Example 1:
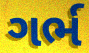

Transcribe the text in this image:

ગર્ભ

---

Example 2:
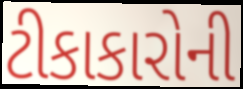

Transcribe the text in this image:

ટીકાકારોની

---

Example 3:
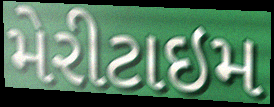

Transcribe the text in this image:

મેરીટાઇમ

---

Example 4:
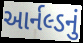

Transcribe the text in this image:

આર્નલ્ડનું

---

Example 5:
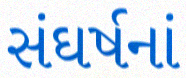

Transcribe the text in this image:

સંઘર્ષનાં